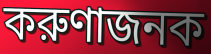
করুণাজনক